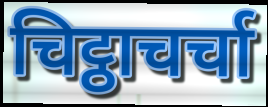
चिट्ठाचर्चा